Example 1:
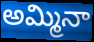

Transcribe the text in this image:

అమ్మినా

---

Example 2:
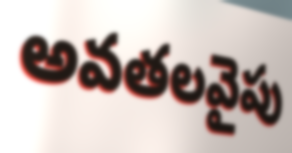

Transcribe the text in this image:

అవతలవైపు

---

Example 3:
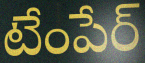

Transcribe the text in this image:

టేంపేర్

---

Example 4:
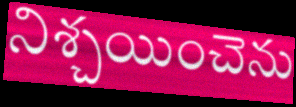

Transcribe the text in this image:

నిశ్చయించెను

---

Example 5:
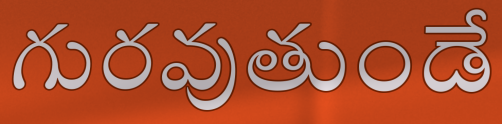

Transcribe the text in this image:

గురవుతుండే